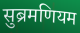
सुब्रमणियम